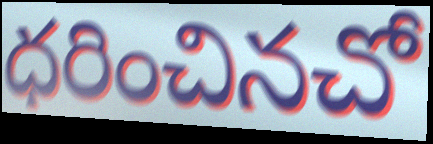
ధరించినచో